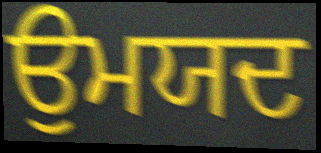
ਉਮਯਦ